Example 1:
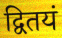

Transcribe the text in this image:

द्वितयं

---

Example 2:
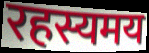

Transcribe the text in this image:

रहस्यमय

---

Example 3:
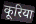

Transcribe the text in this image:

कूरिया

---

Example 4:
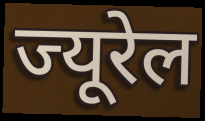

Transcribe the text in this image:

ज्यूरेल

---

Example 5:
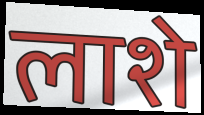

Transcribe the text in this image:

लाशे